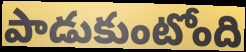
పాడుకుంటోంది